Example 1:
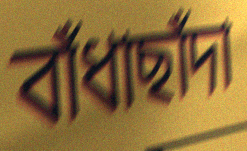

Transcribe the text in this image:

বাঁধাছাঁদা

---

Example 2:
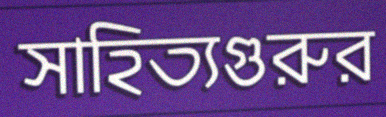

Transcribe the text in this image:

সাহিত্যগুরুর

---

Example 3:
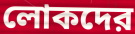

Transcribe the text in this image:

লোকদের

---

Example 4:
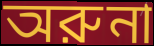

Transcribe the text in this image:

অরুনা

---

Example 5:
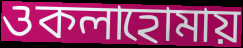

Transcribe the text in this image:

ওকলাহোমায়